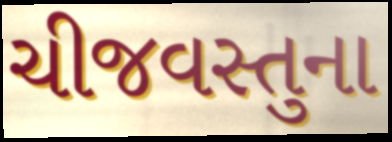
ચીજવસ્તુના